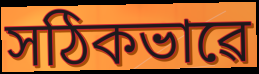
সঠিকভাৱে